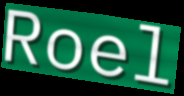
Roel